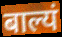
बाल्यं